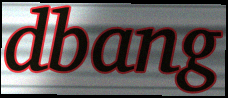
dbang